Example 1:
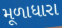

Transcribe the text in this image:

મૂળાધારા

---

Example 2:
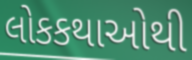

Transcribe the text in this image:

લોકકથાઓથી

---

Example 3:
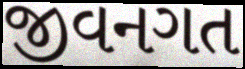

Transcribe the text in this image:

જીવનગત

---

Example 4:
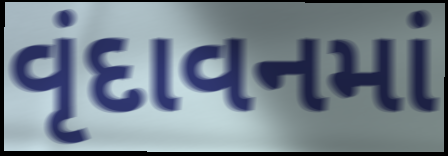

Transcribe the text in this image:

વૃંદાવનમાં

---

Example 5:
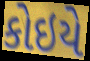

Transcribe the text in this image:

કોઇયે